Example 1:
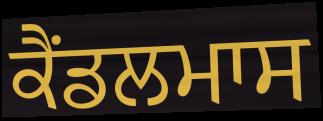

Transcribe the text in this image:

ਕੈਂਡਲਮਾਸ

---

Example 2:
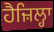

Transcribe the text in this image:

ਹੈਜ਼ਿਲ੍ਹਾ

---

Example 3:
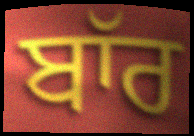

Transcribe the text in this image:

ਬਾੱਰ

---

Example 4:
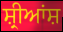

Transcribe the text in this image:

ਸ਼੍ਰੀਆਂਸ਼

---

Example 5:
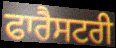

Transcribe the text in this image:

ਫਾਰੈਸਟਰੀ